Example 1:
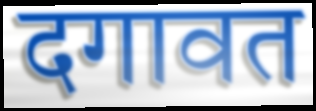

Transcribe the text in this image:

दगावत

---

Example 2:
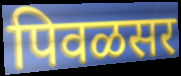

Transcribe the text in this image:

पिवळसर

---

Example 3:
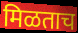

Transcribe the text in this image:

मिळताच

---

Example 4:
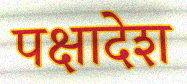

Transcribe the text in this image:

पक्षादेश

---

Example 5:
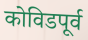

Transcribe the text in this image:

कोविडपूर्व